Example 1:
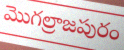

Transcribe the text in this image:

మొగల్రాజపురం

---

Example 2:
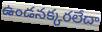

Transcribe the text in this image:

ఉండనక్కరలేదా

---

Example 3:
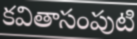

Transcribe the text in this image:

కవితాసంపుటి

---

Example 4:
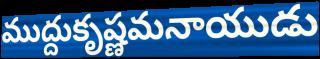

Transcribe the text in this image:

ముద్దుకృష్ణమనాయుడు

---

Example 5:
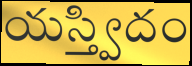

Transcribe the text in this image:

యస్త్విదం